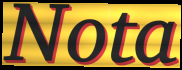
Nota